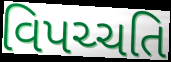
વિપચ્ચતિ